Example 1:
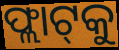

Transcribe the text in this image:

ଫ୍ଲାଟ୍‌କୁ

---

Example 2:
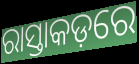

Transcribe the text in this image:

ରାସ୍ତାକଡ଼ରେ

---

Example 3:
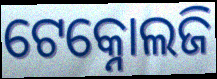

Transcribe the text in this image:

ଟେକ୍ନୋଲଜି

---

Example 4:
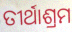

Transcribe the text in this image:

ତୀର୍ଥାଶ୍ରମ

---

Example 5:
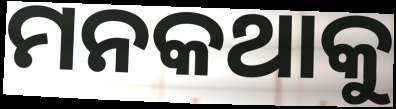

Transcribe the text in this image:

ମନକଥାକୁ